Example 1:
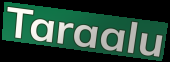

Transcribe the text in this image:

Taraalu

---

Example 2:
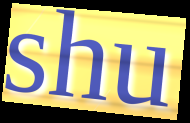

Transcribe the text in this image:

shu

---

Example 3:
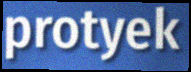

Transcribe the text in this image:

protyek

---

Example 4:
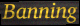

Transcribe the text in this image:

Banning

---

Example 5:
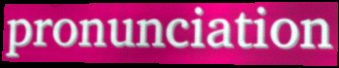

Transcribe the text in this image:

pronunciation